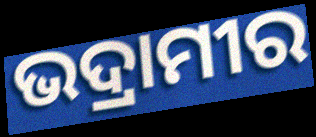
ଭଦ୍ରାମୀର